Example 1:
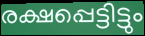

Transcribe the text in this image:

രക്ഷപ്പെട്ടിട്ടും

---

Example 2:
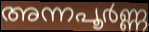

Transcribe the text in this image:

അന്നപൂർണ്ണ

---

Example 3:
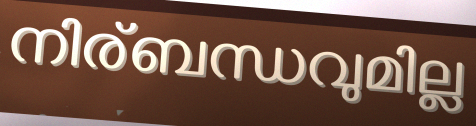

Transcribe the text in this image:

നിര്ബന്ധവുമില്ല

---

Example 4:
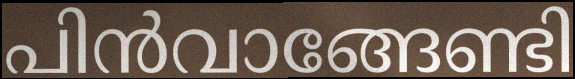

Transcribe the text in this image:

പിൻവാങ്ങേണ്ടി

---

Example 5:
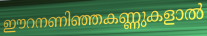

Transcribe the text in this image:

ഈറനണിഞ്ഞകണ്ണുകളാൽ